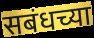
सबंधच्या